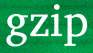
gzip